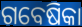
ଗବେଷିକା